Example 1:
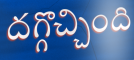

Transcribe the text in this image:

దగ్గొచ్చింది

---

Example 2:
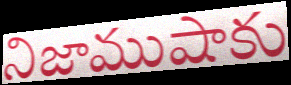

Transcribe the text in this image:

నిజాముషాకు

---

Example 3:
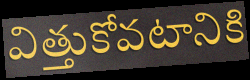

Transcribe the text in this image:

విత్తుకోవటానికి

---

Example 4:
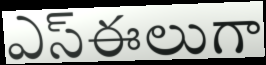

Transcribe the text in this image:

ఎస్ఈలుగా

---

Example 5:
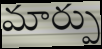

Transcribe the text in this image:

మార్పు